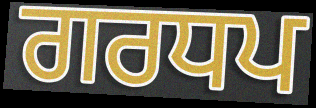
ਗਰਧਪ